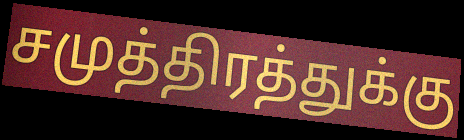
சமுத்திரத்துக்கு